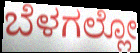
ಬೆಳಗಲ್ಲೋ